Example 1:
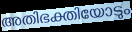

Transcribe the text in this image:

അതിഭക്തിയോടും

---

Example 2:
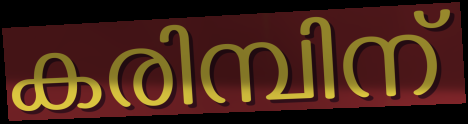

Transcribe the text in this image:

കരിമ്പിന്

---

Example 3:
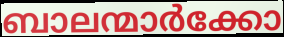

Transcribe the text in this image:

ബാലന്മാർക്കോ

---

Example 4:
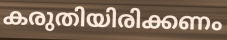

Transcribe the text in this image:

കരുതിയിരിക്കണം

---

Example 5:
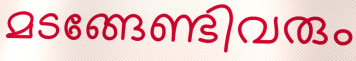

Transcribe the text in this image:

മടങ്ങേണ്ടിവരും